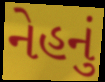
નેહનું